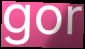
gor